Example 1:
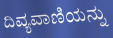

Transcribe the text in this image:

ದಿವ್ಯವಾಣಿಯನ್ನು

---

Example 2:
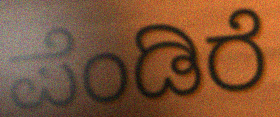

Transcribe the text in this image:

ಪೆಂಡಿರೆ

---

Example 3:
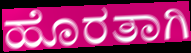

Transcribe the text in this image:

ಹೊರತಾಗಿ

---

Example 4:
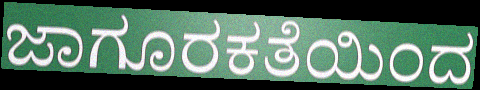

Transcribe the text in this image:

ಜಾಗೂರಕತೆಯಿಂದ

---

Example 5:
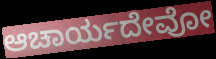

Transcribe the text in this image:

ಆಚಾರ್ಯದೇವೋ